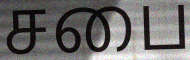
சபை